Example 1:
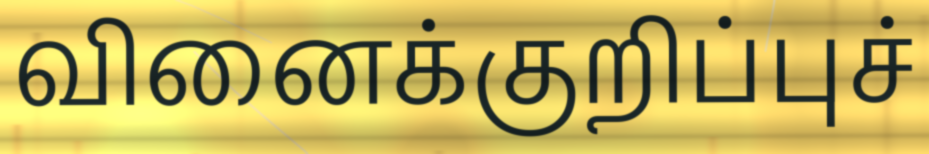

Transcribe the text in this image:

வினைக்குறிப்புச்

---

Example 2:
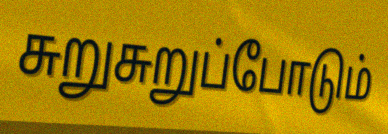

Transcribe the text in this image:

சுறுசுறுப்போடும்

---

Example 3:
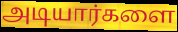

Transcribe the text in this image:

அடியார்களை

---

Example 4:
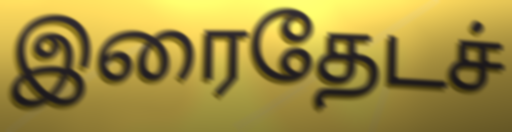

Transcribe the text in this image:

இரைதேடச்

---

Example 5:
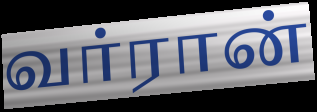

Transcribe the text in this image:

வர்ரான்